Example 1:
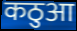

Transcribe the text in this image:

कठुआ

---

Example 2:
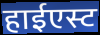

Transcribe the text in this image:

हाईएस्ट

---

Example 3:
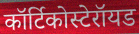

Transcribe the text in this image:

कॉर्टिकोस्टेरॉयड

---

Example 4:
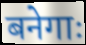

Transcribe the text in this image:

बनेगाः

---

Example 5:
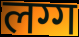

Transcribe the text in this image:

लग्ग